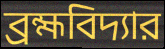
ব্রহ্মবিদ্যার